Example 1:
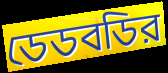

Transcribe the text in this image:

ডেডবডির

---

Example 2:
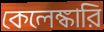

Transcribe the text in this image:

কেলেঙ্কারি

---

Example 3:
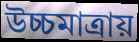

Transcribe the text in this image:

উচ্চমাত্রায়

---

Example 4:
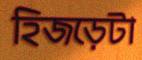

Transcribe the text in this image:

হিজড়েটা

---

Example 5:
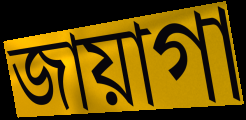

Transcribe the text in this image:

জায়াগা